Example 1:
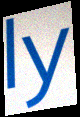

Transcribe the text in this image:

ly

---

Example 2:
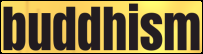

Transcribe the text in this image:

buddhism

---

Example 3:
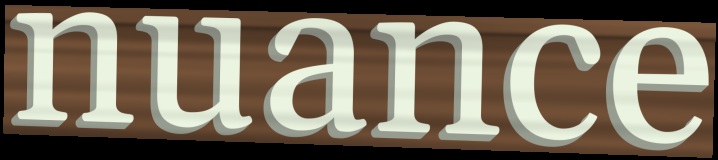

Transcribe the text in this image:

nuance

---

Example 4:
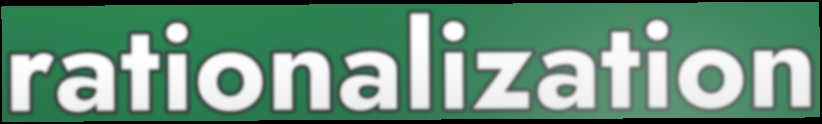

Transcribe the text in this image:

rationalization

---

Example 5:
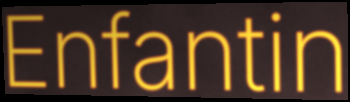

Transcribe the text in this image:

Enfantin